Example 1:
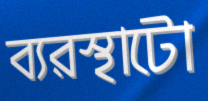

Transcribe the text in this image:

ব্যৱস্থাটো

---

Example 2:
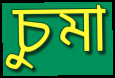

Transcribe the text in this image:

চুমা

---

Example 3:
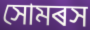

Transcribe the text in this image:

সোমৰস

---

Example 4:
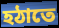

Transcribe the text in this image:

হঠাতে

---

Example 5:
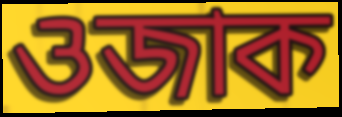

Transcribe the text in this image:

ওজাক